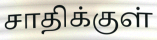
சாதிக்குள்